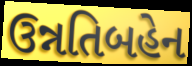
ઉન્નતિબહેન